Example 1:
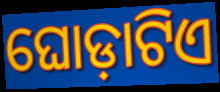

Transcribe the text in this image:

ଘୋଡ଼ାଟିଏ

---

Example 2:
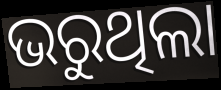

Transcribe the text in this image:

ଭରୁଥିଲା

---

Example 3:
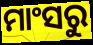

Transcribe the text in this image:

ମାଂସରୁ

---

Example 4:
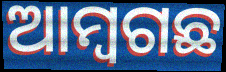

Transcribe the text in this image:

ଆମ୍ବଗଛ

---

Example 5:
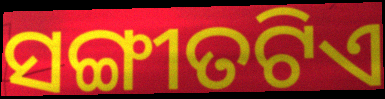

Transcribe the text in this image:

ସଙ୍ଗୀତଟିଏ